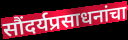
सौंदर्यप्रसाधनांचा